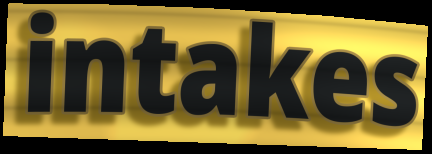
intakes